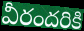
వీరందరికి